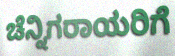
ಚೆನ್ನಿಗರಾಯರಿಗೆ